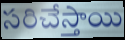
సరిచేస్తాయి